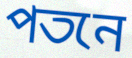
পতনে